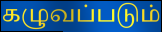
கழுவப்படும்